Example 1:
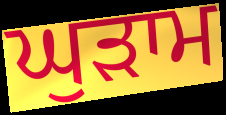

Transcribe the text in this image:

ਘੁੜਾਮ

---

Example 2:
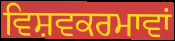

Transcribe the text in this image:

ਵਿਸ਼ਵਕਰਮਾਵਾਂ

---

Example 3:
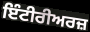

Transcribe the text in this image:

ਇੰਟੀਰੀਅਰਜ਼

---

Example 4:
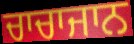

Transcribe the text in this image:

ਚਾਚਾਜਾਨ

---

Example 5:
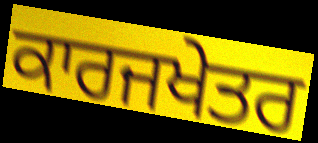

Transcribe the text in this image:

ਕਾਰਜਖੇਤਰ